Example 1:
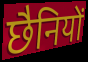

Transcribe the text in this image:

छैनियों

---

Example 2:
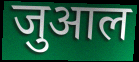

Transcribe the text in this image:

जुआल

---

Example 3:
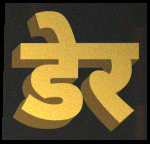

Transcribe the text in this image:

डेर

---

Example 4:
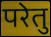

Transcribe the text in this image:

परेतु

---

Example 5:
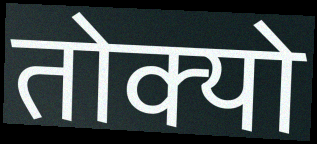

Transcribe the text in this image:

तोक्‍यो